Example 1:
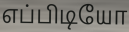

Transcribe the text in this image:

எப்பிடியோ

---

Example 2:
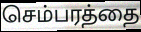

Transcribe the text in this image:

செம்பரத்தை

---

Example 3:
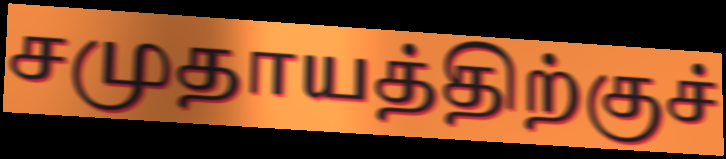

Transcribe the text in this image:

சமுதாயத்திற்குச்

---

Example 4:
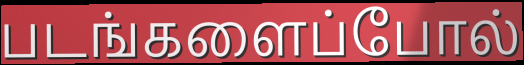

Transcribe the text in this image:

படங்களைப்போல்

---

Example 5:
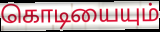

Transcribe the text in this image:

கொடியையும்